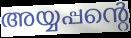
അയ്യപ്പന്റെ